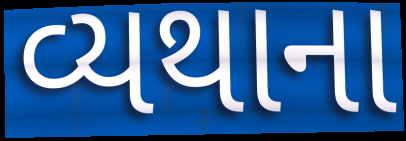
વ્યથાના